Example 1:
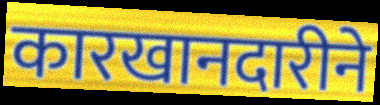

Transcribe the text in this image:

कारखानदारीने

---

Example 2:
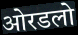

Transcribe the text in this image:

ओरडलो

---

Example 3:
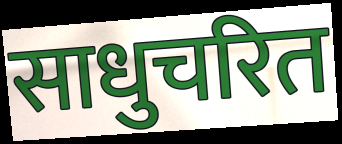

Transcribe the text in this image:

साधुचरित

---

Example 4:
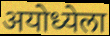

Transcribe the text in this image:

अयोध्येला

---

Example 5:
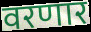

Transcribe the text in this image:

वरणार